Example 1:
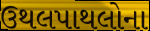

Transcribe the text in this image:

ઉથલપાથલોના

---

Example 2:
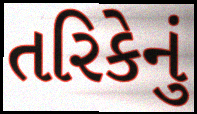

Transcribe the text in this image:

તરિકેનું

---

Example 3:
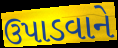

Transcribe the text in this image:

ઉપાડવાને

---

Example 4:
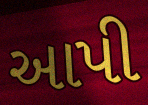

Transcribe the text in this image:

આપી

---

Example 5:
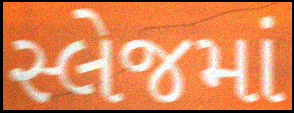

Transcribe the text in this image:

સ્લેજમાં